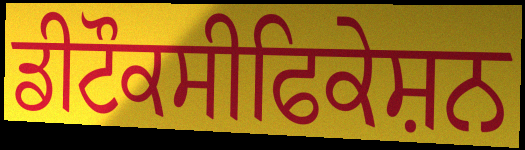
ਡੀਟੌਕਸੀਫਿਕੇਸ਼ਨ